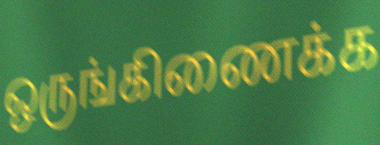
ஒருங்கிணைக்க